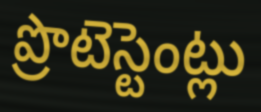
ప్రొటెస్టెంట్లు